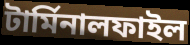
টার্মিনালফাইল